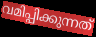
വമിപ്പിക്കുന്നത്